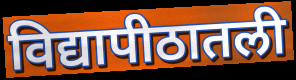
विद्यापीठातली